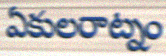
ఏకులరాట్నం